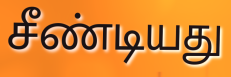
சீண்டியது